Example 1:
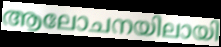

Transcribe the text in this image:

ആലോചനയിലായി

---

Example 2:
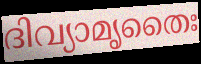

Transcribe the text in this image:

ദിവ്യാമൃതൈഃ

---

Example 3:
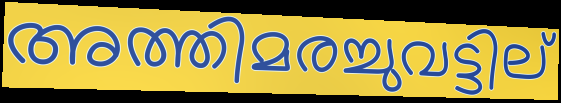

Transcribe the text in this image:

അത്തിമരച്ചുവട്ടില്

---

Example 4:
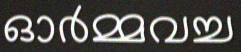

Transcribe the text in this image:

ഓർമ്മവച്ച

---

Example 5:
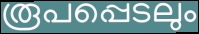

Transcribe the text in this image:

രൂപപ്പെടലും